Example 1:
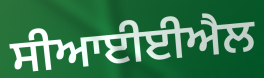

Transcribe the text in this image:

ਸੀਆਈਈਐਲ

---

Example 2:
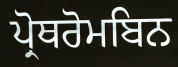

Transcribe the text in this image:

ਪ੍ਰੋਥਰੋਮਬਿਨ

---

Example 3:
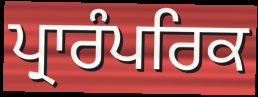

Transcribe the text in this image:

ਪ੍ਰਾਰੰਪਰਿਕ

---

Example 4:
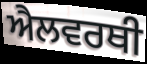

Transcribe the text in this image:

ਐਲਵਰਥੀ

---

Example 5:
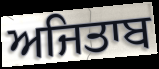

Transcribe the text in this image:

ਅਜਿਤਾਬ